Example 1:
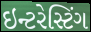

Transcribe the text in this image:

ઇન્ટરેસ્ટિંગ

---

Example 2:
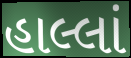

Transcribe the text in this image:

હાલ્લાં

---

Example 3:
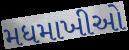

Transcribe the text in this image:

મધમાખીઓ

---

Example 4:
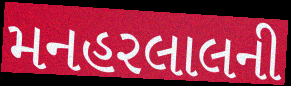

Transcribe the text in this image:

મનહરલાલની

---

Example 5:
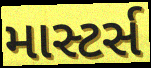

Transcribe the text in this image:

માસ્ટર્સ